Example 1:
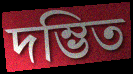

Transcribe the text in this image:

দম্ভিত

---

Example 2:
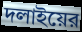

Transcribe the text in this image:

দলাইয়ের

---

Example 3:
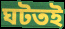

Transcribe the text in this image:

ঘটতই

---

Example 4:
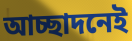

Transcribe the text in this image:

আচ্ছাদনেই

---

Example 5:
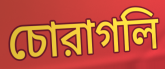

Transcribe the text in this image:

চোরাগলি